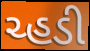
ચ્હડી